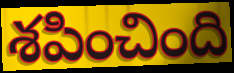
శపించింది